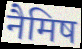
नैमिष